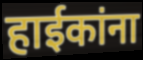
हाईकांना